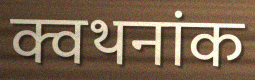
क्वथनांक